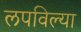
लपविल्या